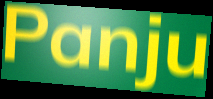
Panju